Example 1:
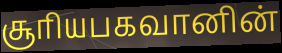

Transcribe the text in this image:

சூரியபகவானின்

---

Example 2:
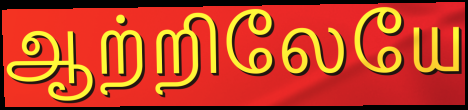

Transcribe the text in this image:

ஆற்றிலேயே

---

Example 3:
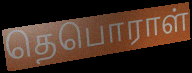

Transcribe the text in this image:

தெபொராள்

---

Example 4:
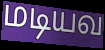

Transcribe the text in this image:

மடியவ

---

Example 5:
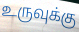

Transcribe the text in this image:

உருவுக்கு